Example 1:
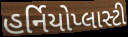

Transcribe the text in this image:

હર્નિયોપ્લાસ્ટી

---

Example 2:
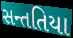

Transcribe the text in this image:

સન્તતિયા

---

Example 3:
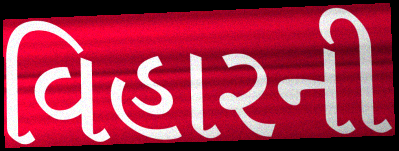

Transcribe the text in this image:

વિહારની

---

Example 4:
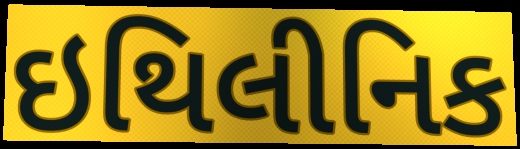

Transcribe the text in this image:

ઇથિલીનિક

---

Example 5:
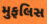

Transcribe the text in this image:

મુફલિસ